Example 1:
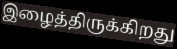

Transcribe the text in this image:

இழைத்திருக்கிறது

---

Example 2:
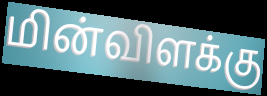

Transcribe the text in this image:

மின்விளக்கு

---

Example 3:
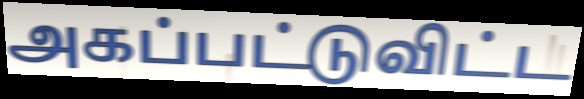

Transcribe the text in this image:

அகப்பட்டுவிட்ட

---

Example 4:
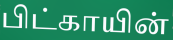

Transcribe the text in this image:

பிட்காயின்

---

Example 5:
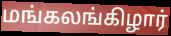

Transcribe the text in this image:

மங்கலங்கிழார்